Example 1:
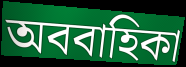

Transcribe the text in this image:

অববাহিকা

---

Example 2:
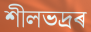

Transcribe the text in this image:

শীলভদ্ৰৰ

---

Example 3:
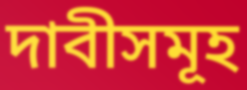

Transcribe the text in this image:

দাবীসমূহ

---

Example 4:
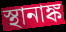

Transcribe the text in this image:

স্থানাঙ্ক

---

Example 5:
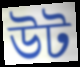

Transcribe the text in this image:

উট